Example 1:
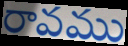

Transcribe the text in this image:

రావము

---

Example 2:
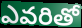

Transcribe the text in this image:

ఎవరితో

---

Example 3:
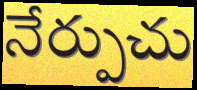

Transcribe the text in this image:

నేర్పుచు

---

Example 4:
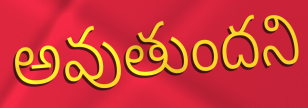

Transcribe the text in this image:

అవుతుందని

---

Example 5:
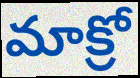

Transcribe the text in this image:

మాక్రో